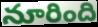
నూరింది